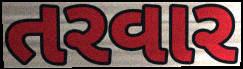
તરવાર